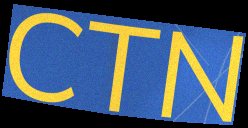
CTN